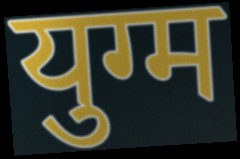
युग्म